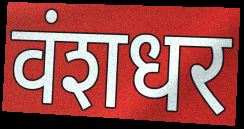
वंशधर